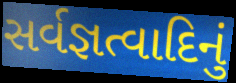
સર્વજ્ઞત્વાદિનું